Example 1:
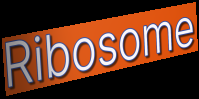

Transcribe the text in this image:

Ribosome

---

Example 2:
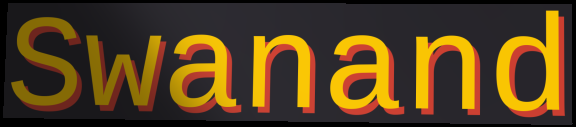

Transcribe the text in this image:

Swanand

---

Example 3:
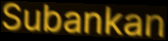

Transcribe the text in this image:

Subankan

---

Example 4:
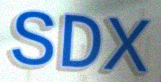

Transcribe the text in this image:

SDX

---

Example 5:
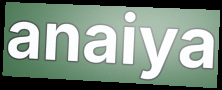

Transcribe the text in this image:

anaiya